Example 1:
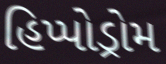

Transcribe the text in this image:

હિપ્પોડ્રોમ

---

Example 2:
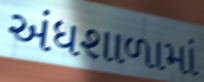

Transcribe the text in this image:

અંધશાળામાં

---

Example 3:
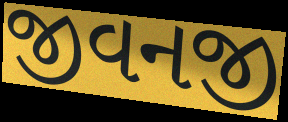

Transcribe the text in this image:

જીવનજી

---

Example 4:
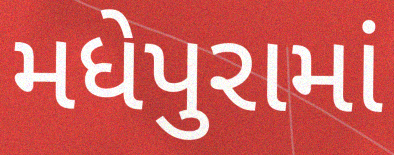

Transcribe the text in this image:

મધેપુરામાં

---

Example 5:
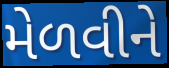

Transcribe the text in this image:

મેળવીને